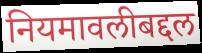
नियमावलीबद्दल